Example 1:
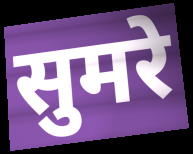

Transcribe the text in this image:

सुमरे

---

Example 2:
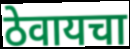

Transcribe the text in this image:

ठेवायचा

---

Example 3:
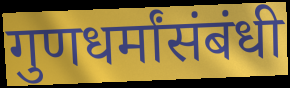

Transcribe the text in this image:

गुणधर्मांसंबंधी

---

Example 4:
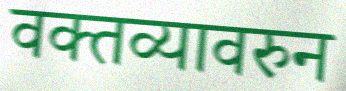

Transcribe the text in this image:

वक्तव्यावरुन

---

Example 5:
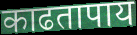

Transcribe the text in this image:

काढतापाय